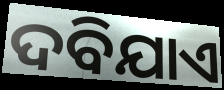
ଦବିଯାଏ